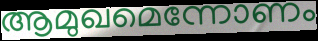
ആമുഖമെന്നോണം